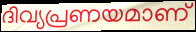
ദിവ്യപ്രണയമാണ്